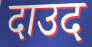
दाउद